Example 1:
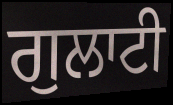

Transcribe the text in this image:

ਗੁਲਾਟੀ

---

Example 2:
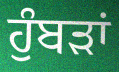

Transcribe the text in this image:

ਹੁੰਬੜਾਂ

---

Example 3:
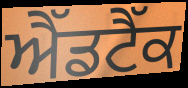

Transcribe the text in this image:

ਐੱਡਟੈੱਕ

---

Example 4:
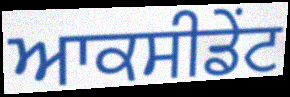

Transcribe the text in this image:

ਆਕਸੀਡੇਂਟ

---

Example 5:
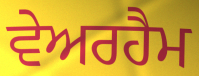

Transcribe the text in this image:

ਵੇਅਰਹੈਮ